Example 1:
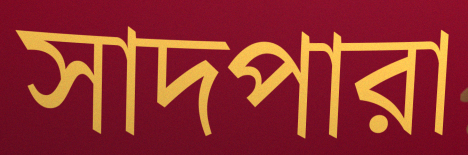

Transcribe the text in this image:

সাদপারা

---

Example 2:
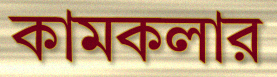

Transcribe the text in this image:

কামকলার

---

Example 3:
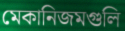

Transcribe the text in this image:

মেকানিজমগুলি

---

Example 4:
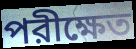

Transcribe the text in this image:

পরীক্ষেত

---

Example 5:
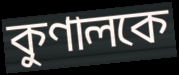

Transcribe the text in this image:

কুণালকে